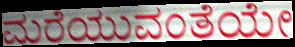
ಮರೆಯುವಂತೆಯೇ